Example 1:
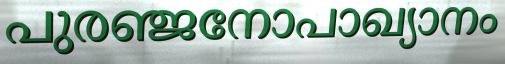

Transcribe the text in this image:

പുരഞ്ജനോപാഖ്യാനം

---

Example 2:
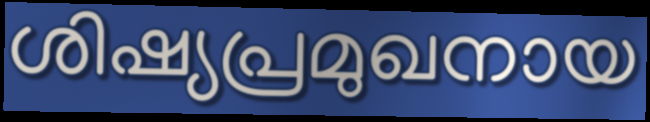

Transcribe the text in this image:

ശിഷ്യപ്രമുഖനായ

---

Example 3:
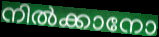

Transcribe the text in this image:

നിൽക്കാനോ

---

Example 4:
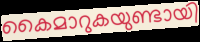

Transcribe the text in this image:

കൈമാറുകയുണ്ടായി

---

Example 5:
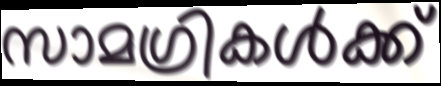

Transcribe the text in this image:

സാമഗ്രികൾക്ക്